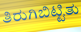
ತಿರುಗಿಬಿಟ್ಟಿತು